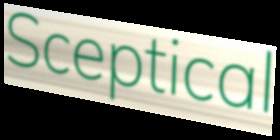
Sceptical